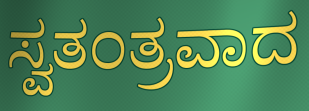
ಸ್ವತಂತ್ರವಾದ